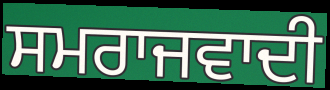
ਸਮਰਾਜਵਾਦੀ